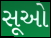
સૂઓ